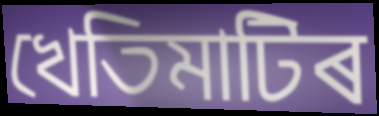
খেতিমাটিৰ